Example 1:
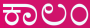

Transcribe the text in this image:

ಕಾಲಂ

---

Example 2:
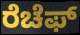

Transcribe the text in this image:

ರೆಚೆಫ್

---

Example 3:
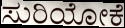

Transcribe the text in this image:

ಸುರಿಯೋಕೆ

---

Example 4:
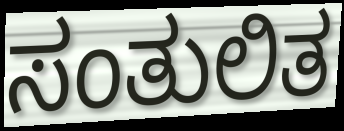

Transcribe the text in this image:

ಸಂತುಲಿತ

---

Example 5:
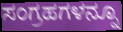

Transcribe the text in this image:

ಸಂಗ್ರಹಗಳನ್ನೂ